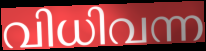
വിധിവന്ന